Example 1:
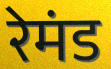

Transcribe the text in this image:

रेमंड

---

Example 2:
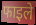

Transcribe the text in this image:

फाइले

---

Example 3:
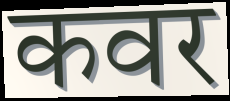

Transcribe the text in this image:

कवर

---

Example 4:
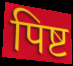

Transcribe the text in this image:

पिष्ट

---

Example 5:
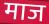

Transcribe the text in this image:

माज